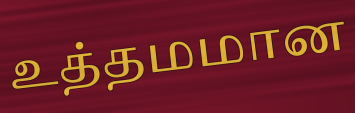
உத்தமமான